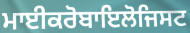
ਮਾਈਕਰੋਬਾਇਲੋਜਿਸਟ